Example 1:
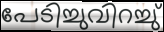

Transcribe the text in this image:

പേടിച്ചുവിറച്ചു്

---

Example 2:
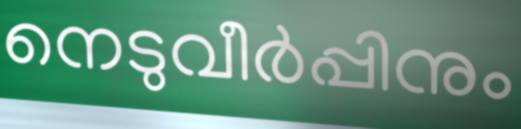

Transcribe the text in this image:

നെടുവീർപ്പിനും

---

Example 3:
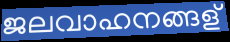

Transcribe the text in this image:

ജലവാഹനങ്ങള്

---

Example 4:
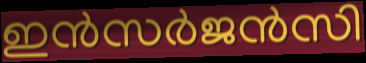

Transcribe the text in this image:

ഇൻസർജൻസി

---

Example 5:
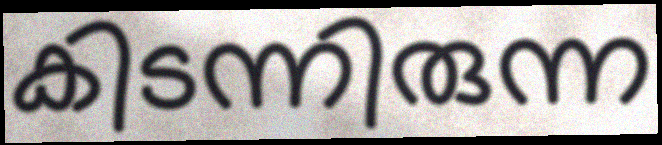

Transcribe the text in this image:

കിടന്നിരുന്ന